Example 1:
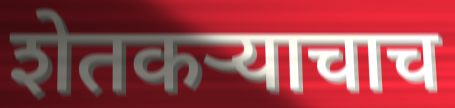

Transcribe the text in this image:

शेतकऱ्याचाच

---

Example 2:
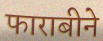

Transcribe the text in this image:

फाराबीने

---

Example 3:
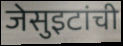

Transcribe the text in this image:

जेसुइटांची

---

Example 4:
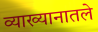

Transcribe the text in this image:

व्याख्यानातले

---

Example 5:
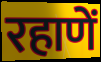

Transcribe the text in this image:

रहाणें